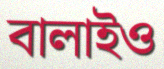
বালাইও